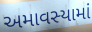
અમાવસ્યામાં